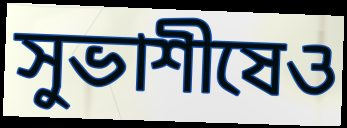
সুভাশীষেও